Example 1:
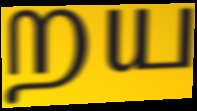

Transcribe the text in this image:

றய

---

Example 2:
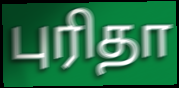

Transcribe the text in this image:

புரிதா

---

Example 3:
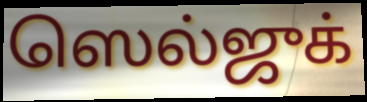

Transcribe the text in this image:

ஸெல்ஜுக்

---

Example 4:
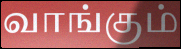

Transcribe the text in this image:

வாங்கும்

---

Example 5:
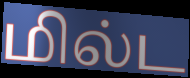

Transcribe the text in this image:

மில்ட